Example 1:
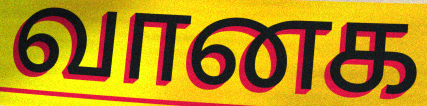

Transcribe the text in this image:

வானக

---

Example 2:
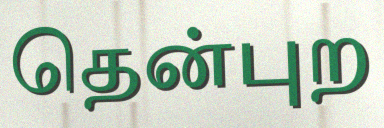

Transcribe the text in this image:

தென்புற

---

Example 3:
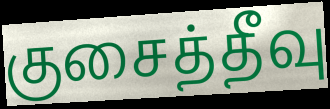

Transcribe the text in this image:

குசைத்தீவு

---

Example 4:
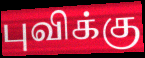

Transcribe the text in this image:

புவிக்கு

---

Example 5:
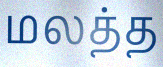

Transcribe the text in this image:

மலத்த